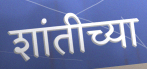
शांतीच्या